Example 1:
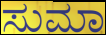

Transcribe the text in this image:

ಸುಮಾ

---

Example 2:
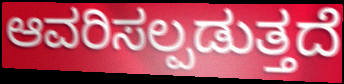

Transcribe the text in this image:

ಆವರಿಸಲ್ಪಡುತ್ತದೆ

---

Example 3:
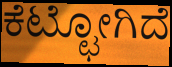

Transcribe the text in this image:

ಕೆಟ್ಟೋಗಿದೆ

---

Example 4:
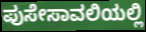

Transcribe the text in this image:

ಪುಸೇಸಾವಲಿಯಲ್ಲಿ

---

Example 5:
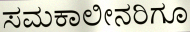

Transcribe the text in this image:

ಸಮಕಾಲೀನರಿಗೂ